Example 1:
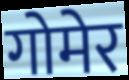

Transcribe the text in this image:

गोमेर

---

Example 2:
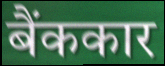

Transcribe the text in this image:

बैंककार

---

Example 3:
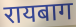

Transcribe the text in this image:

रायबाग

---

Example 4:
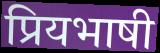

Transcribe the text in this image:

प्रियभाषी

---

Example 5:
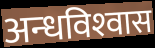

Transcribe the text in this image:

अन्‍धविश्‍वास